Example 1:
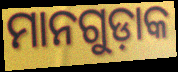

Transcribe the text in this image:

ମାନଗୁଡ଼ାକ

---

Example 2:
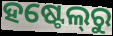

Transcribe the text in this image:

ହଷ୍ଟେଲ୍‍ରୁ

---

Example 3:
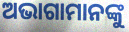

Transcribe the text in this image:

ଅଭାଗାମାନଙ୍କୁ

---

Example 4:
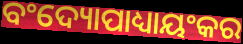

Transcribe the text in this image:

ବଂଦ୍ୟୋପାଧ୍ୟାୟଂକର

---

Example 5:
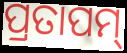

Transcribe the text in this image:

ପ୍ରତାପମ୍